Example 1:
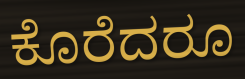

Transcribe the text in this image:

ಕೊರೆದರೂ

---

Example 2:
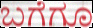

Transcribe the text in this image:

ಬಗೆಗೂ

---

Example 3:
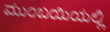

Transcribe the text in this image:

ಮುಂಬಯಿಯಲ್ಲಿ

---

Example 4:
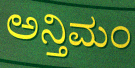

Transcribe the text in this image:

ಅನ್ತಿಮಂ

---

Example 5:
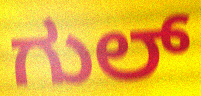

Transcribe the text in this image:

ಗುಲ್